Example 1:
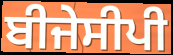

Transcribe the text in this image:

ਬੀਜੇਸੀਪੀ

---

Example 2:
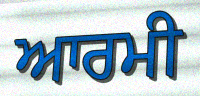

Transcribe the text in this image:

ਆਰਮੀ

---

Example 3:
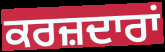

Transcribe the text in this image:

ਕਰਜ਼ਦਾਰਾਂ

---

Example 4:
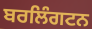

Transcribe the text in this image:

ਬਰਲਿੰਗਟਨ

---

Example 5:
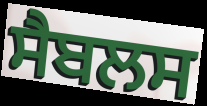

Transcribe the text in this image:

ਸੈਬਲਸ